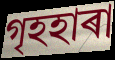
গৃহহাৰা